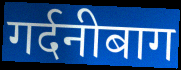
गर्दनीबाग